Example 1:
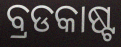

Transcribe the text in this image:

ବ୍ରଡକାଷ୍ଟ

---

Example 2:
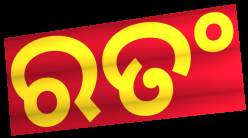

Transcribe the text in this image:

ରତଂ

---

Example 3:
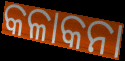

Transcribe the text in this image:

କଳାକନା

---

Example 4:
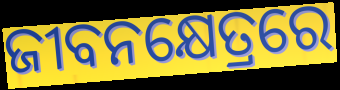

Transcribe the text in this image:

ଜୀବନକ୍ଷେତ୍ରରେ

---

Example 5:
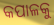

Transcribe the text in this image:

କପାଳକୁ